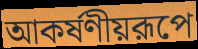
আকর্ষণীয়রূপে